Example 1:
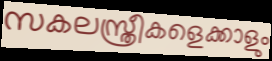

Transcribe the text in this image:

സകലസ്ത്രീകളെക്കാളും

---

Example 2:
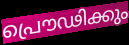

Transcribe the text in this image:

പ്രൌഢിക്കും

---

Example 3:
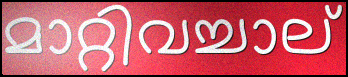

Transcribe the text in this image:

മാറ്റിവച്ചാല്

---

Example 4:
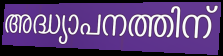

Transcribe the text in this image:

അദ്ധ്യാപനത്തിന്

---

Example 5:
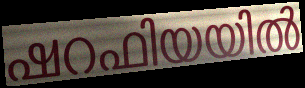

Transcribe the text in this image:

ഷറഫിയയിൽ